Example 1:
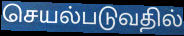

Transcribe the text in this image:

செயல்படுவதில்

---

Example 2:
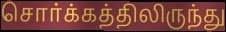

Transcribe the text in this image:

சொர்க்கத்திலிருந்து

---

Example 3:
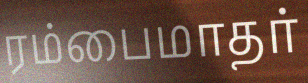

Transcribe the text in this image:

ரம்பைமாதர்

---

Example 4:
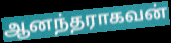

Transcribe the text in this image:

ஆனந்தராகவன்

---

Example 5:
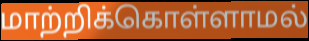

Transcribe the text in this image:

மாற்றிக்கொள்ளாமல்